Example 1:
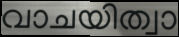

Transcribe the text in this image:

വാചയിത്വാ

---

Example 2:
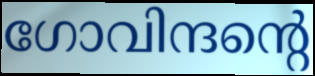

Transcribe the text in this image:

ഗോവിന്ദന്റെ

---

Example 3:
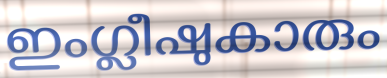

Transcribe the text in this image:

ഇംഗ്ലീഷുകാരും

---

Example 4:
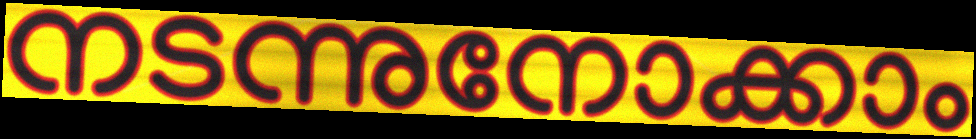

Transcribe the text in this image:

നടന്നുനോക്കാം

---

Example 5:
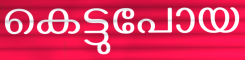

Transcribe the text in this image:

കെട്ടുപോയ